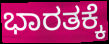
ಭಾರತಕ್ಕೆ